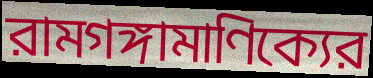
রামগঙ্গামাণিক্যের